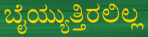
ಬೈಯ್ಯುತ್ತಿರಲಿಲ್ಲ